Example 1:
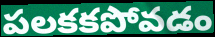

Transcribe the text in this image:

పలకకపోవడం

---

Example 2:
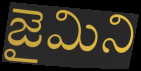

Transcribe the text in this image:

జైమిని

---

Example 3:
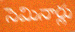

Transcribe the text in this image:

సెమినార్లు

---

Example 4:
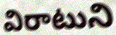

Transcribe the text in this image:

విరాటుని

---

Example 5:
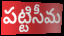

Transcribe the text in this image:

పట్టిసీమ